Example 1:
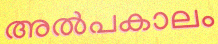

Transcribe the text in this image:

അൽപകാലം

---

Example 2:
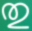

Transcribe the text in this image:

തു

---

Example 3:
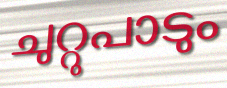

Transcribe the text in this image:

ചുറ്റുപാടും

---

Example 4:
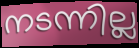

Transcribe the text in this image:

നടന്നില്ല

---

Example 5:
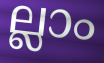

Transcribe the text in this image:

ല്ലാം